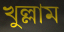
খুল্লাম